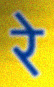
रे